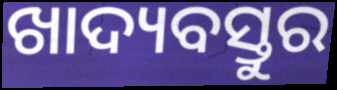
ଖାଦ୍ୟବସ୍ତୁର